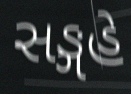
સઙ્ગહે